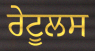
ਰੇਟੂਲਸ